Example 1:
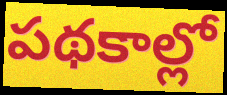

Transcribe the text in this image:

పథకాల్లో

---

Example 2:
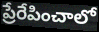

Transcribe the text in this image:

ప్రేరేపించాలో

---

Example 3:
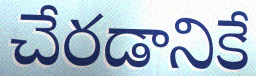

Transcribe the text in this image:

చేరడానికే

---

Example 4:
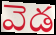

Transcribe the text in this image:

వెడ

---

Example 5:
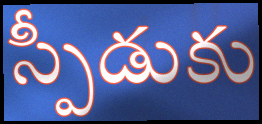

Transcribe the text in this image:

స్పీడుకు